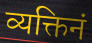
व्यक्तिनं